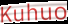
Kuhuo